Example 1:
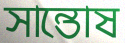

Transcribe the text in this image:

সান্তোষ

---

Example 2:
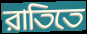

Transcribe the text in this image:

রাতিতে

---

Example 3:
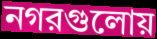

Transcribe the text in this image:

নগরগুলোয়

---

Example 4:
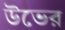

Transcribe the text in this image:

উভের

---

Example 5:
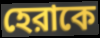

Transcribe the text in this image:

হেরাকে